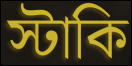
স্টাকি